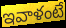
ఇవాళంటే